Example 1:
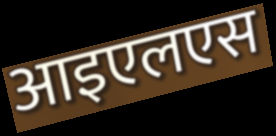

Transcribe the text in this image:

आइएलएस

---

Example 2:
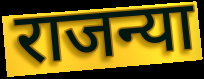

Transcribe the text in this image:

राजन्या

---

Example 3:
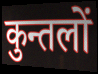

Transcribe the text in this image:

कुन्तलों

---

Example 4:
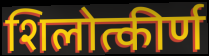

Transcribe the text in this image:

शिलोत्कीर्ण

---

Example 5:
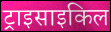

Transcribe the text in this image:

ट्राइसाइकिल